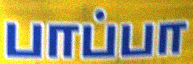
பாப்பா